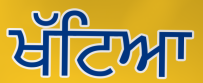
ਖੱਟਿਆ